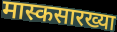
मास्कसारख्या